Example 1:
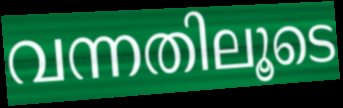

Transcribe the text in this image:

വന്നതിലൂടെ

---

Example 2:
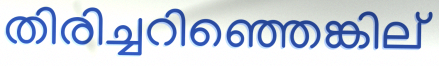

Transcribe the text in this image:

തിരിച്ചറിഞ്ഞെങ്കില്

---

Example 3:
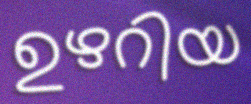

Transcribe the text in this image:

ഉഴറിയ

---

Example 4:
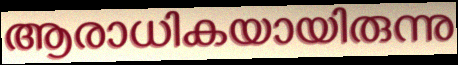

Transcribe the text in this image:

ആരാധികയായിരുന്നു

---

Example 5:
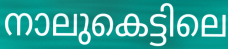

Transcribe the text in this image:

നാലുകെട്ടിലെ